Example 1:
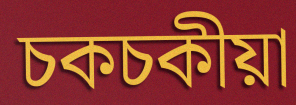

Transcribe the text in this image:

চকচকীয়া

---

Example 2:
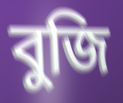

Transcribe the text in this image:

বুজি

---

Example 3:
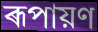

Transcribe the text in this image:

ৰূপায়ণ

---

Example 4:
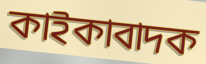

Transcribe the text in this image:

কাইকাবাদক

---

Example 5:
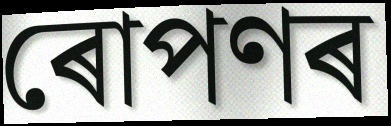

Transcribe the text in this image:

ৰোপণৰ